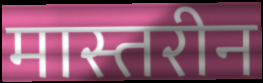
मास्तरीन